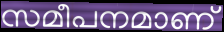
സമീപനമാണ്